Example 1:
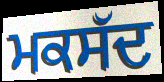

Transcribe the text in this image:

ਮਕਸੱਦ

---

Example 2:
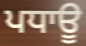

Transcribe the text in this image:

ਪਧਾਊ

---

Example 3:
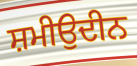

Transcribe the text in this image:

ਸ਼ਮੀਉਦੀਨ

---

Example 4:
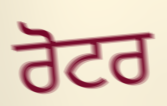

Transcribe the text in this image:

ਰੋਟਰ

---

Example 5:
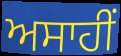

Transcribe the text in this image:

ਅਸਾਹੀਂ